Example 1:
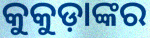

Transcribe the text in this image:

କୁକୁଡ଼ାଙ୍କର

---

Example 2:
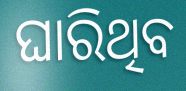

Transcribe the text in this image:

ଘାରିଥିବ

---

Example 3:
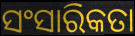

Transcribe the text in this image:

ସଂସାରିକତା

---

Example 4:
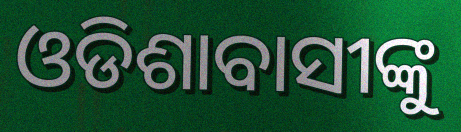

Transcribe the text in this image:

ଓଡିଶାବାସୀଙ୍କୁ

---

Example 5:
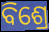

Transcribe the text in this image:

ବିଶ୍ରେ